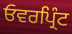
ਓਵਰਪ੍ਰਿੰਟ